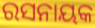
ରସନାୟକ